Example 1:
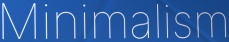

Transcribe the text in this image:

Minimalism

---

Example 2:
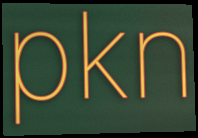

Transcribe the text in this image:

pkn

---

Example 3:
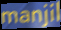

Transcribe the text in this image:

manjil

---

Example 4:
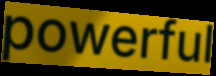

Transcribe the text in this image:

powerful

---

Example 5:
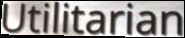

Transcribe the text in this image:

Utilitarian